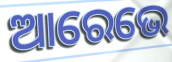
ଆରେଭେ